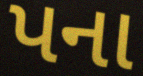
પના